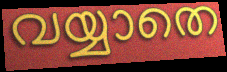
വയ്യാതെ